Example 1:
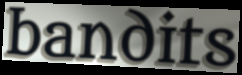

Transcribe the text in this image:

bandits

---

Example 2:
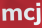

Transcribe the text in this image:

mcj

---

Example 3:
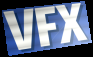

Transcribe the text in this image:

VFX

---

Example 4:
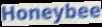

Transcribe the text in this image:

Honeybee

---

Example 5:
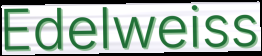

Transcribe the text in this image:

Edelweiss